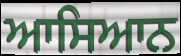
ਆਸਿਆਨ